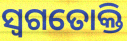
ସ୍ୱଗତୋକ୍ତି